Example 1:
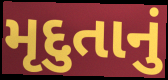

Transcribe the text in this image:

મૃદુતાનું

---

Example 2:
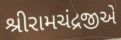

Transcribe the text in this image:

શ્રીરામચંદ્રજીએ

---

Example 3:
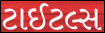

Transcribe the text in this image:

ટાઈટલ્સ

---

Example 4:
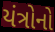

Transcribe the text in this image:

યંત્રોનો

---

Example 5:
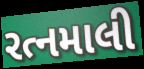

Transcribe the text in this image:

રત્નમાલી